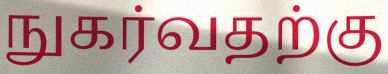
நுகர்வதற்கு